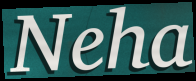
Neha